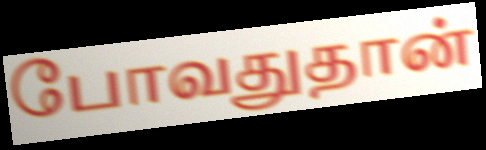
போவதுதான்